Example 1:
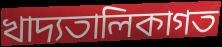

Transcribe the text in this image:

খাদ্যতালিকাগত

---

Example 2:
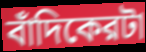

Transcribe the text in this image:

বাঁদিকেরটা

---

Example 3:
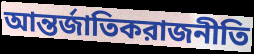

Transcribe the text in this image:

আন্তর্জাতিকরাজনীতি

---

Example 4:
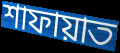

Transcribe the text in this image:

শাফায়াত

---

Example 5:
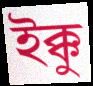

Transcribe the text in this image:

ইক্কু